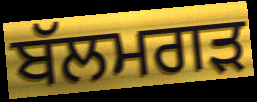
ਬੱਲਮਗੜ